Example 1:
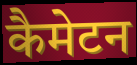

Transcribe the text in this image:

कैमेटन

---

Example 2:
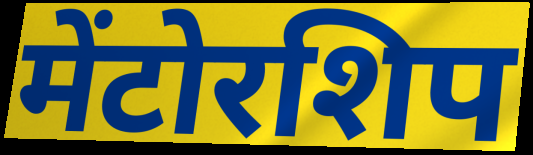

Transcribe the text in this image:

मेंटोरशिप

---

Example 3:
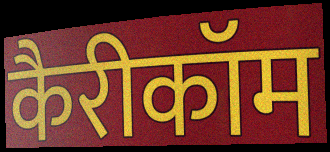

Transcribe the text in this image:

कैरीकॉम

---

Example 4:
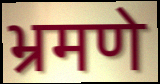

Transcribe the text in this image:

भ्रमणे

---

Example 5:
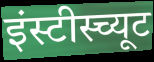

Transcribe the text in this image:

इंस्टीस्च्यूट